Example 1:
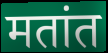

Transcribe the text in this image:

मतांत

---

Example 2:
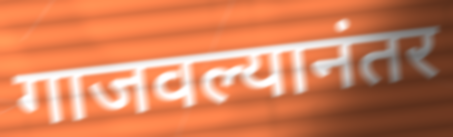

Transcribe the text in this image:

गाजवल्यानंतर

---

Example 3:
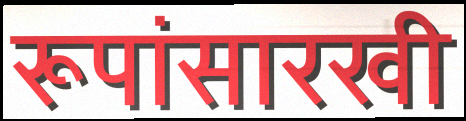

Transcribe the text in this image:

रूपांसारखी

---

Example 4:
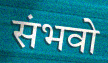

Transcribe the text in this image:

संभवो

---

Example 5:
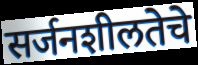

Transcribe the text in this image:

सर्जनशीलतेचे